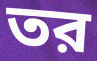
তর